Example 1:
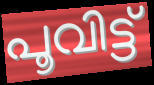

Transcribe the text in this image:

പൂവിട്ട്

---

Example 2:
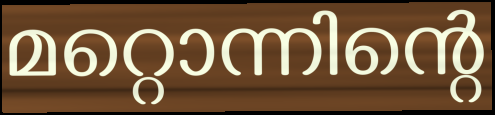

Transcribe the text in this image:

മറ്റൊന്നിന്റെ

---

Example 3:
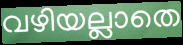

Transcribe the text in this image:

വഴിയല്ലാതെ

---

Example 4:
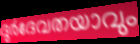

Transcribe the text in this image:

ദുർദേവതയാവും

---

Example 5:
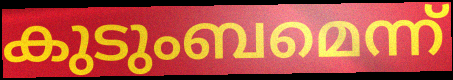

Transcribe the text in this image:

കുടുംബമെന്ന്